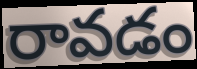
రావడం